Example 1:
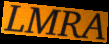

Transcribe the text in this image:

LMRA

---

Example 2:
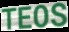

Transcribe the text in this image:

TEOS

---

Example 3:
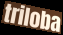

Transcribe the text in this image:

triloba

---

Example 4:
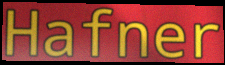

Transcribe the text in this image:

Hafner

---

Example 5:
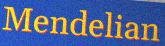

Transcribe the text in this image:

Mendelian